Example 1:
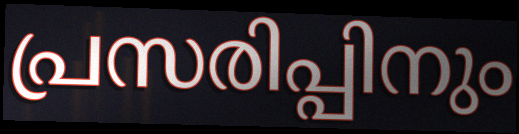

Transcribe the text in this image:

പ്രസരിപ്പിനും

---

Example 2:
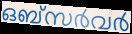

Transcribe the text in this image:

ഒബ്സർവർ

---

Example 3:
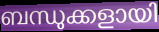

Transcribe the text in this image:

ബന്ധുക്കളായി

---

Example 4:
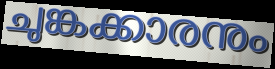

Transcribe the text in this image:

ചുങ്കക്കാരനും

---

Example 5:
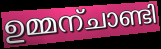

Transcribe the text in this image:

ഉമ്മന്ചാണ്ടി